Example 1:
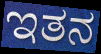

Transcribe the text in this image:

ಇತನ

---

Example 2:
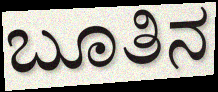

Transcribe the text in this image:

ಬೂತಿನ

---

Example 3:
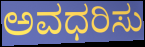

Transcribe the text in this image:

ಅವಧರಿಸು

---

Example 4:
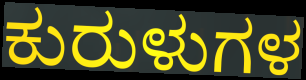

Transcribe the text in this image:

ಕುರುಳುಗಳ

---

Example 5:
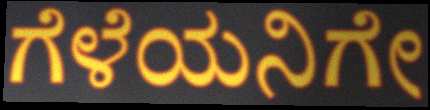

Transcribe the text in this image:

ಗೆಳೆಯನಿಗೇ